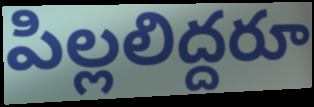
పిల్లలిద్దరూ